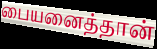
பையனைத்தான்